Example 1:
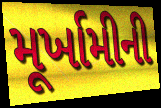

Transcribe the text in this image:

મૂર્ખામીની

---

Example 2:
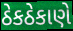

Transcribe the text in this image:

ઠેકઠેકાણે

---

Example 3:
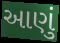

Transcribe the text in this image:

આણું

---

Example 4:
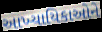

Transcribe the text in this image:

આખ્યાયિકાઓને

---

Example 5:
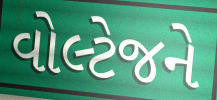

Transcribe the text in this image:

વોલ્ટેજને